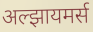
अल्झायमर्स